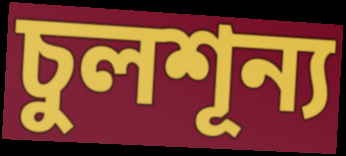
চুলশূন্য